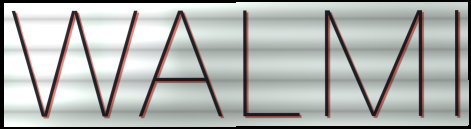
WALMI